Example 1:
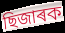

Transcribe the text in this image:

ছিজাৰক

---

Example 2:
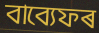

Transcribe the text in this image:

বাব্যেফৰ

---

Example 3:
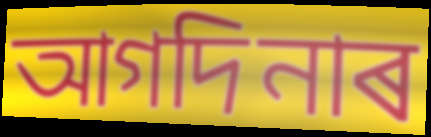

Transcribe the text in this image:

আগদিনাৰ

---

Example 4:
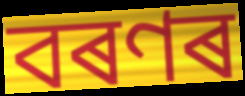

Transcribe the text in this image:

বৰণৰ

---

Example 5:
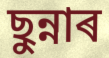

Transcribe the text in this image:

ছুন্নাৰ